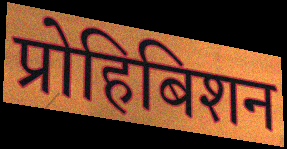
प्रोहिबिशन